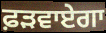
ਫ਼ੜਵਾਏਗਾ